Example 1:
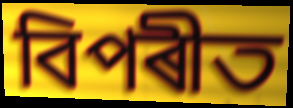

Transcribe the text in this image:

বিপৰীত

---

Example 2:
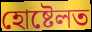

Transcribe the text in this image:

হোষ্টেলত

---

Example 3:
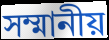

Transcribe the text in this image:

সম্মানীয়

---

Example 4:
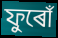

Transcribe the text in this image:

ফুৰোঁ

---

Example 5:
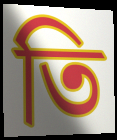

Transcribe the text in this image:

তি